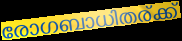
രോഗബാധിതര്ക്ക്